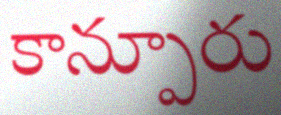
కాన్పూరు